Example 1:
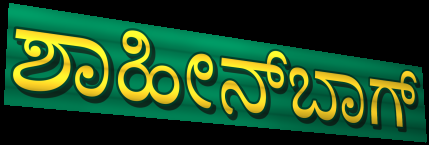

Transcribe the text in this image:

ಶಾಹೀನ್‌ಬಾಗ್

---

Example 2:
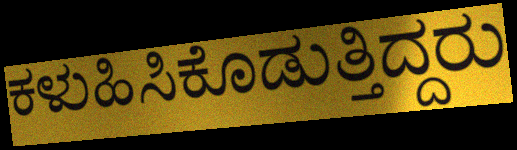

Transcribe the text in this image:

ಕಳುಹಿಸಿಕೊಡುತ್ತಿದ್ದರು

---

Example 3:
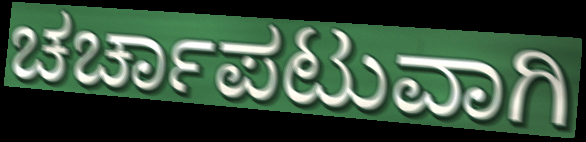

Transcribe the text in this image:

ಚರ್ಚಾಪಟುವಾಗಿ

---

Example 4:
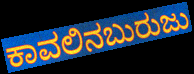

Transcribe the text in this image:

ಕಾವಲಿನಬುರುಜು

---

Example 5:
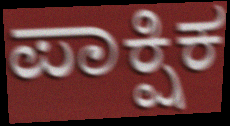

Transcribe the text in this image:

ಪಾಕ್ಷಿಕ